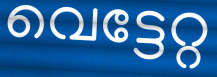
വെട്ടേറ്റ